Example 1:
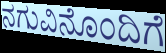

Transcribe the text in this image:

ನಗುವಿನೊಂದಿಗೆ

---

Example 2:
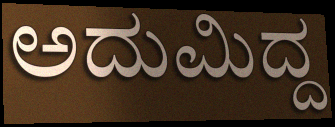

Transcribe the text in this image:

ಅದುಮಿದ್ದ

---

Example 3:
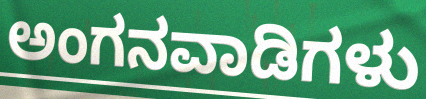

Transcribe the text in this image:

ಅಂಗನವಾಡಿಗಳು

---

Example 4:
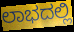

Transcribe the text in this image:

ಲಾಭದಲ್ಲಿ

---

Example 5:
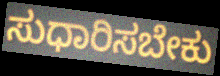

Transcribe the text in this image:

ಸುಧಾರಿಸಬೇಕು